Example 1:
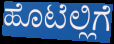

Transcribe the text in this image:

ಹೊಟೆಲ್ಲಿಗೆ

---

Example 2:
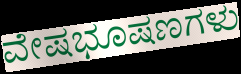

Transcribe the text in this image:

ವೇಷಭೂಷಣಗಳು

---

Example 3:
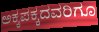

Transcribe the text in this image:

ಅಕ್ಕಪಕ್ಕದವರಿಗೂ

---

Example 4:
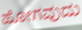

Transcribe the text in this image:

ಹೋಗವುದು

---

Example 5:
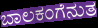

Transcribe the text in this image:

ಬಾಲಕಂಗೆನುತ